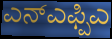
ಎನ್ಎಫ್ಪಿಎ